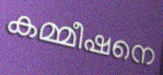
കമ്മീഷനെ